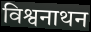
विश्वनाथन